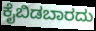
ಕೈಬಿಡಬಾರದು